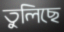
তুলিছে